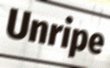
Unripe